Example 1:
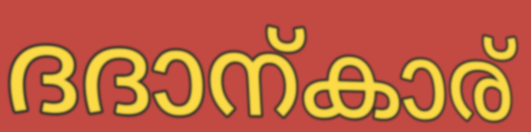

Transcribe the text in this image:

ദദാന്കാര്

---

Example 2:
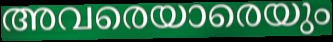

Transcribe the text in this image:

അവരെയാരെയും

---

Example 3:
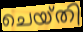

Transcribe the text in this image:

ചെയ്‌തി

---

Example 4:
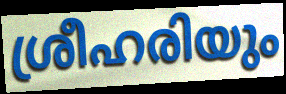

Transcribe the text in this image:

ശ്രീഹരിയും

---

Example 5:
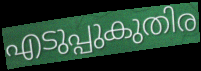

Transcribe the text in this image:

എടുപ്പുകുതിര